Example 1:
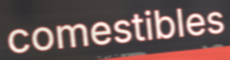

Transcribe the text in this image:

comestibles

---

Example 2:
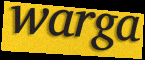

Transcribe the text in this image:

warga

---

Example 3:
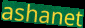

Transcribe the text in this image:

ashanet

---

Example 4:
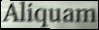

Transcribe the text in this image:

Aliquam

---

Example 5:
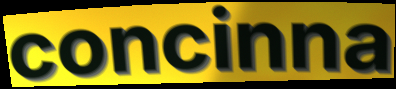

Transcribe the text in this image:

concinna